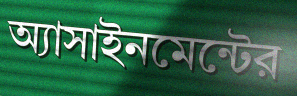
অ্যাসাইনমেন্টের